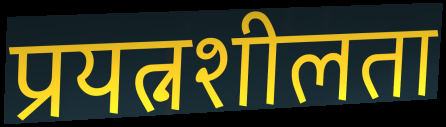
प्रयत्नशीलता